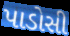
પાડોસી